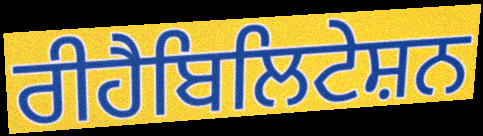
ਰੀਹੈਬਿਲਿਟੇਸ਼ਨ